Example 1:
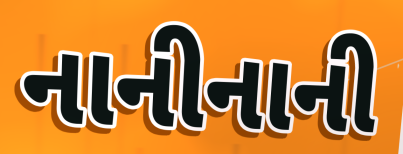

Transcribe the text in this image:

નાનીનાની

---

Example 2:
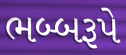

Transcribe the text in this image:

ભબ્બરૂપે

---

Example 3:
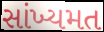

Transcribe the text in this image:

સાંખ્યમત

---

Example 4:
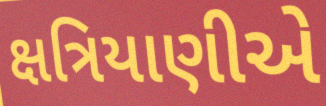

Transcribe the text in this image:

ક્ષત્રિયાણીએ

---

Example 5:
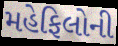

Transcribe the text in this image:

મહેફિલોની